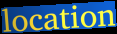
location